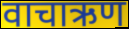
वाचाऋण